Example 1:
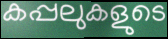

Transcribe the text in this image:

കപ്പലുകളുടെ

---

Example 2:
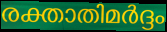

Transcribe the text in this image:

രക്താതിമർദ്ദം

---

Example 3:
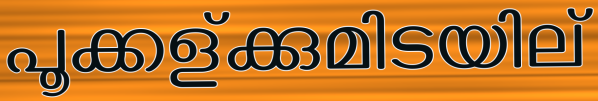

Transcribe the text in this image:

പൂക്കള്ക്കുമിടയില്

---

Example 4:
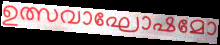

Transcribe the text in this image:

ഉത്സവാഘോഷമോ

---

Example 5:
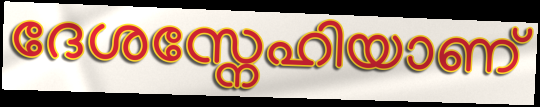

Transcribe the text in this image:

ദേശസ്നേഹിയാണ്